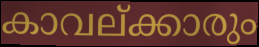
കാവല്ക്കാരും